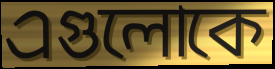
এগুলোকে